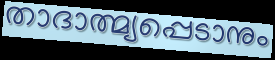
താദാത്മ്യപ്പെടാനും